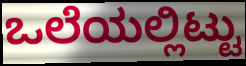
ಒಲೆಯಲ್ಲಿಟ್ಟು